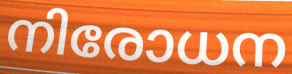
നിരോധന